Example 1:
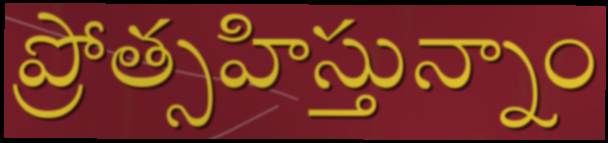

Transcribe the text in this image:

ప్రోత్సహిస్తున్నాం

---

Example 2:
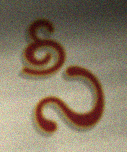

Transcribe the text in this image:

సీ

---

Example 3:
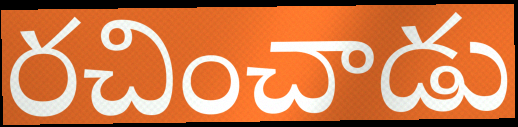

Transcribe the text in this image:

రచించాడు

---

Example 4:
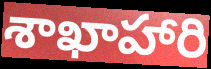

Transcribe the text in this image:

శాఖాహారి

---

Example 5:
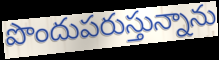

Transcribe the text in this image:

పొందుపరుస్తున్నాను